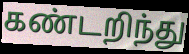
கண்டறிந்து